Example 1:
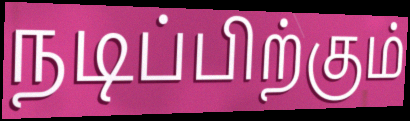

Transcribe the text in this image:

நடிப்பிற்கும்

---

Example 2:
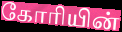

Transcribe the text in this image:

கோரியின்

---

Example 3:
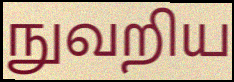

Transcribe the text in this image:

நுவறிய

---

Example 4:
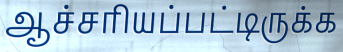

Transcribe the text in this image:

ஆச்சரியப்பட்டிருக்க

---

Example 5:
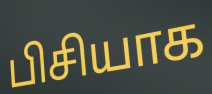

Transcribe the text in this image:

பிசியாக